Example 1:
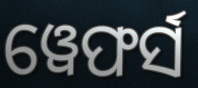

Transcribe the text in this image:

ୱେଫର୍ସ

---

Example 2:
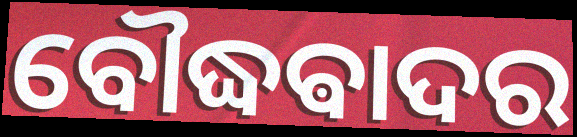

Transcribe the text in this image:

ବୌଦ୍ଧଵାଦର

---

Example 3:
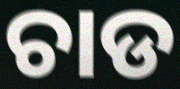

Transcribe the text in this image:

ଚାଡ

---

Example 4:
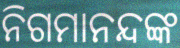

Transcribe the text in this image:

ନିଗମାନନ୍ଦଙ୍କ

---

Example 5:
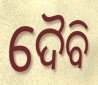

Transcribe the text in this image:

ଦୈବି